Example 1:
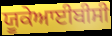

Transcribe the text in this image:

ਯੂਕੇਆਈਬੀਸੀ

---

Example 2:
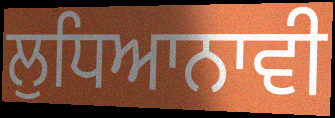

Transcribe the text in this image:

ਲੁਧਿਆਨਾਵੀ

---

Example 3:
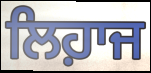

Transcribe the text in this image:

ਲਿਹ਼ਾਜ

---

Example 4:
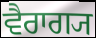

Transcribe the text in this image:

ਵੈਰਾਗ੍ਯ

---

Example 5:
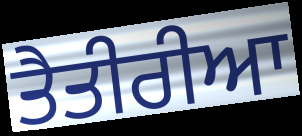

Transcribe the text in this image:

ਤੈਤੀਰੀਆ